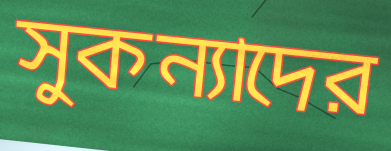
সুকন্যাদের